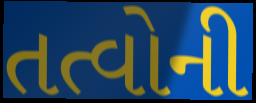
તત્વોની